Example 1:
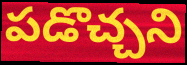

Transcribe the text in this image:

పడొచ్చని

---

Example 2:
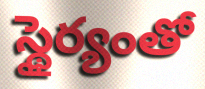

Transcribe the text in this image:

స్థైర్యంతో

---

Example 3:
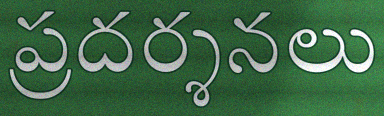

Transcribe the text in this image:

ప్రదర్శనలు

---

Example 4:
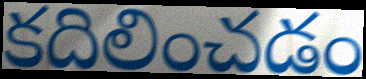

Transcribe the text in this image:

కదిలించడం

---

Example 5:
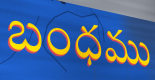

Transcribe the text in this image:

బంధము